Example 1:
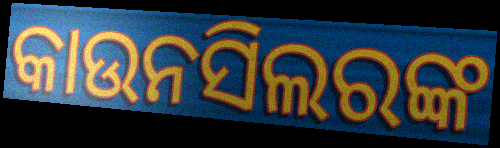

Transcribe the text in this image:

କାଉନସିଲରଙ୍କ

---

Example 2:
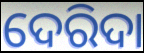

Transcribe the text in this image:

ଦେରିଦା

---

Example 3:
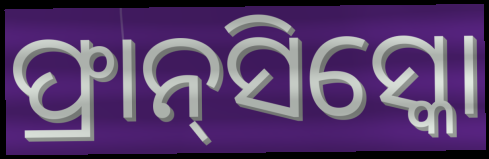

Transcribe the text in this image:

ଫ୍ରାନ୍‌ସିସ୍କୋ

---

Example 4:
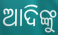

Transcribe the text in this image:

ଆଦିଙ୍କୁ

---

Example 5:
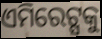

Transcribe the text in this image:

ଏମିରେଟ୍ସକୁ